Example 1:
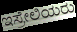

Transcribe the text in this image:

ಇಸ್ರೇಲಿಯರು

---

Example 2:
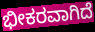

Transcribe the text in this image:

ಭೀಕರವಾಗಿದೆ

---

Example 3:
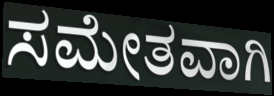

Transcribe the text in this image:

ಸಮೇತವಾಗಿ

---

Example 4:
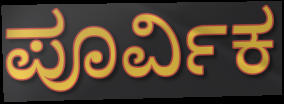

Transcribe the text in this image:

ಪೂರ್ವಿಕ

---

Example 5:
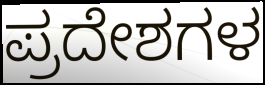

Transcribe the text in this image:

ಪ್ರದೇಶಗಳ